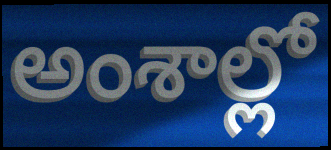
అంశాల్లో